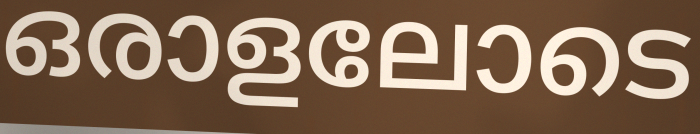
ഒരാളലോടെ